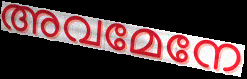
അവമേനേ